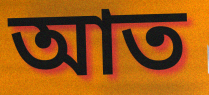
আত